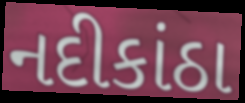
નદીકાંઠા